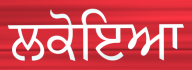
ਲਕੋਇਆ